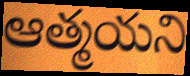
ఆత్మయని